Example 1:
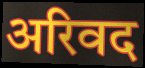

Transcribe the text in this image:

अरिवद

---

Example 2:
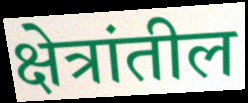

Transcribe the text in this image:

क्षेत्रांतील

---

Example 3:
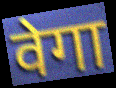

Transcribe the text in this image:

वेगा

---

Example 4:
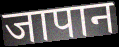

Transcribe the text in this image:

जापान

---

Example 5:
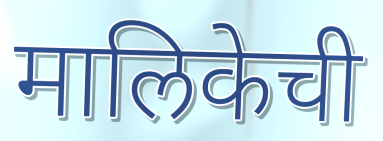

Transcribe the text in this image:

मालिकेची